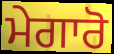
ਮੇਗਾਰੋ